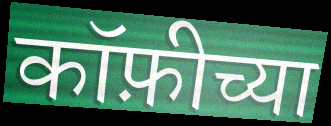
कॉफ़ीच्या